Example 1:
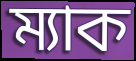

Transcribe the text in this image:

ম্যাক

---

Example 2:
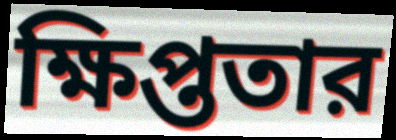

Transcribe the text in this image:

ক্ষিপ্ততার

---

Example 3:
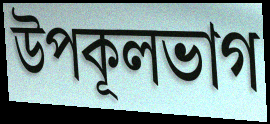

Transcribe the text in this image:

উপকূলভাগ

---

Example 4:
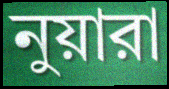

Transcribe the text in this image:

নুয়ারা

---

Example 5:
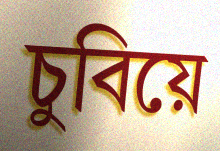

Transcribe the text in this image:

চুবিয়ে